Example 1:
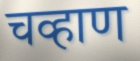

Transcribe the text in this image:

चव्हाण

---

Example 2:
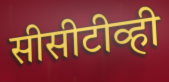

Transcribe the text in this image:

सीसीटीव्ही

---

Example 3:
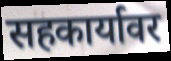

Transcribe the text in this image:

सहकार्यावर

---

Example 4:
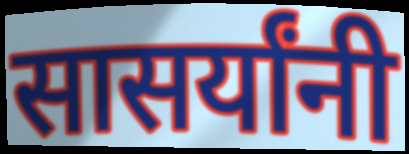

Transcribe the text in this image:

सासर्यांनी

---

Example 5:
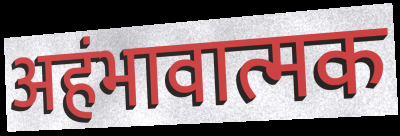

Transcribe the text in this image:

अहंभावात्मक